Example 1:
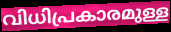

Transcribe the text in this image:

വിധിപ്രകാരമുള്ള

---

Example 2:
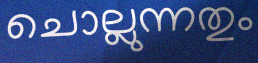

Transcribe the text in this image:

ചൊല്ലുന്നതും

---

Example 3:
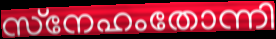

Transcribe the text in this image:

സ്‌നേഹംതോന്നി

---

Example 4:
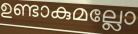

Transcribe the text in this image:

ഉണ്ടാകുമല്ലോ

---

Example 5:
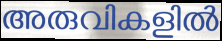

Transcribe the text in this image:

അരുവികളിൽ